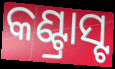
କଣ୍ଟ୍ରାସ୍ଟ